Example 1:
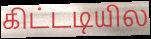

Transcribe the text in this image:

கிட்டடியில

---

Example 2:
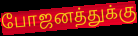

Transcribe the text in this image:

போஜனத்துக்கு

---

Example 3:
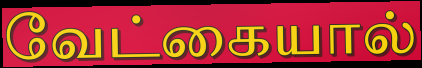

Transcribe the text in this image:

வேட்கையால்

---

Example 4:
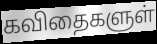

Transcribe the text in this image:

கவிதைகளுள்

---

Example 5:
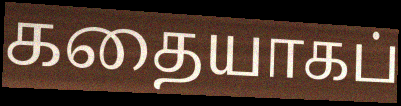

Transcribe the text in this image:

கதையாகப்